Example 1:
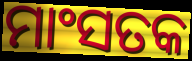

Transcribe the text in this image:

ମାଂସତକ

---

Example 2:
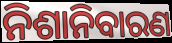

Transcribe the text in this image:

ନିଶାନିବାରଣ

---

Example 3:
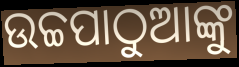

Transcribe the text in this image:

ଉଚ୍ଚପାଠୁଆଙ୍କୁ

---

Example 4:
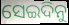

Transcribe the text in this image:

ସେଇଦିନୁ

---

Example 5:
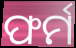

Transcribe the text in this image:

ଫର୍ମ